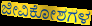
ಜೀವಿಕೋಶಗಳ